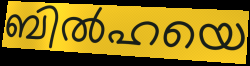
ബിൽഹയെ